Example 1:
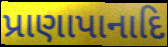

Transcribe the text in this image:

પ્રાણાપાનાદિ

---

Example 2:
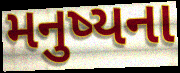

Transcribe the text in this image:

મનુષ્યના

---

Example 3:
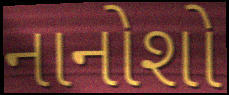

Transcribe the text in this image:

નાનોશો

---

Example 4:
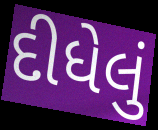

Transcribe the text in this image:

દીધેલું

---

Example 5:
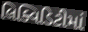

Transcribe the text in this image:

લિક્વિડિટીમાં